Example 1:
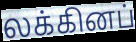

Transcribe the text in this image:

லக்கினப்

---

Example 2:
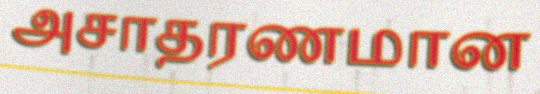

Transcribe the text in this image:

அசாதரணமான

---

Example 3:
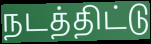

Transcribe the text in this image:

நடத்திட்டு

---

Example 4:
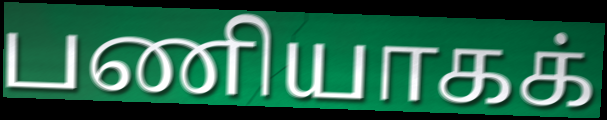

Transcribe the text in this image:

பணியாகக்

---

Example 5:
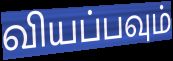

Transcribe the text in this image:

வியப்பவும்